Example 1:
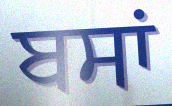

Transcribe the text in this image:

ਬਸਾਂ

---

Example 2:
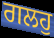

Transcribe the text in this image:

ਗਲਹੁ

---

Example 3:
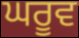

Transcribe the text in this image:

ਘਰੂਵ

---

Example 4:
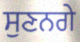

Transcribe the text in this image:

ਸੁਣਨਗੇ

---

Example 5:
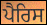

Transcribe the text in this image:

ਪੈਰਿਸ